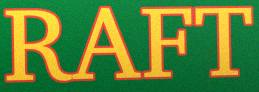
RAFT